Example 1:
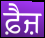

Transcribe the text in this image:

ਫ਼ੈਜ਼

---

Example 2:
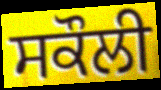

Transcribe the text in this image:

ਸਕੌਲੀ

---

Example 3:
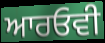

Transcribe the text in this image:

ਆਰਓਵੀ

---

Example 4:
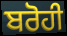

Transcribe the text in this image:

ਬਰੋਹੀ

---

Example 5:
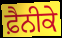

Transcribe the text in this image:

ਫ਼ੈਨੀਕੇ